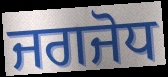
ਜਗਜੋਧ